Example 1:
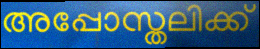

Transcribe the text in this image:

അപ്പോസ്തലിക്ക്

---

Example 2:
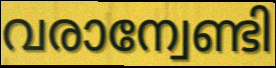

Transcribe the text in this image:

വരാന്വേണ്ടി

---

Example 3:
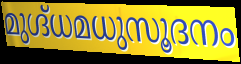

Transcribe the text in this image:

മുഗ്ദ്ധമധുസൂദനം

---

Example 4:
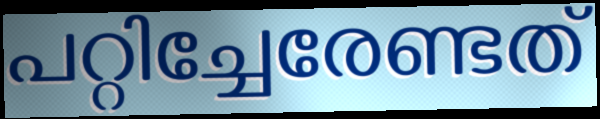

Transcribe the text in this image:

പറ്റിച്ചേരേണ്ടത്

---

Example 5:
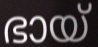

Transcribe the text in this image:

ഭായ്